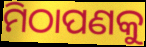
ମିଠାପଣକୁ